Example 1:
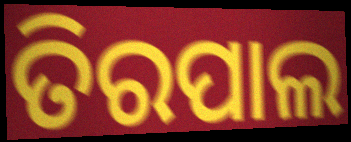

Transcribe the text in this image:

ତିରପାଲ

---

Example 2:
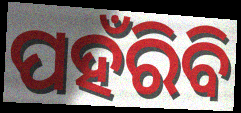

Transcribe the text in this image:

ପହଁରିବି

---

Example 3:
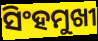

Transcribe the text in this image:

ସିଂହମୁଖୀ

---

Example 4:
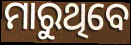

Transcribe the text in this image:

ମାରୁଥିବେ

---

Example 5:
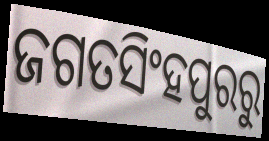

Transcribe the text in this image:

ଜଗତସିଂହପୁରରୁ